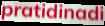
pratidinadi